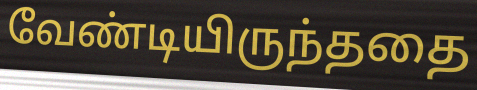
வேண்டியிருந்ததை